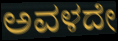
ಅವಳದೇ